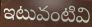
ఇటువంటివి